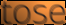
tose